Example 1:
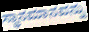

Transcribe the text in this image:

ಸ್ಥಾನಮಾನವನ್ನು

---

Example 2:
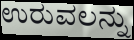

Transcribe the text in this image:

ಉರುವಲನ್ನು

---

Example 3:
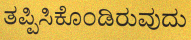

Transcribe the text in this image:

ತಪ್ಪಿಸಿಕೊಂಡಿರುವುದು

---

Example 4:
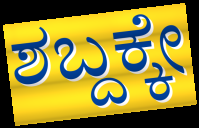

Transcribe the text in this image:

ಶಬ್ದಕ್ಕೇ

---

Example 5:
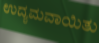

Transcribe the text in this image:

ಉದ್ಯಮವಾಯಿತು